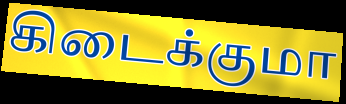
கிடைக்குமா